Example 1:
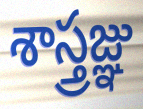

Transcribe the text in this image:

శాస్త్రజ్ఞు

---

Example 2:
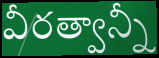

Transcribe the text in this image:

వీరత్వాన్నీ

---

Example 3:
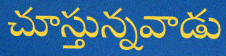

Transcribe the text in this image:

చూస్తున్నవాడు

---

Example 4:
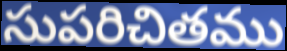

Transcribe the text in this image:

సుపరిచితము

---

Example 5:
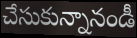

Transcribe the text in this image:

చేసుకున్నానండీ